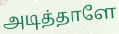
அடித்தாளே